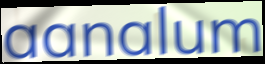
aanalum